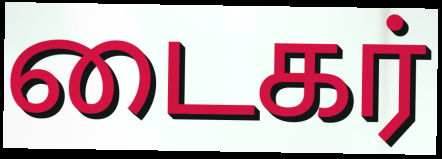
டைகர்